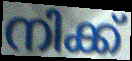
നിക്ക്